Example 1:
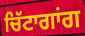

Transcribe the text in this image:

ਚਿੱਟਾਗਾਂਗ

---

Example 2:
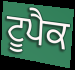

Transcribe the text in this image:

ਟੂਪੈਕ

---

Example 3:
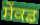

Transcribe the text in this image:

ਸੇਂਕਡ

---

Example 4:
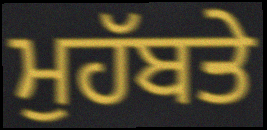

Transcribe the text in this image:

ਮੁਹੱਬਤੇ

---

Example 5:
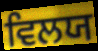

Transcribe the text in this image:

ਵਿਲਯ